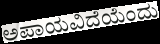
ಅಪಾಯವಿದೆಯೆಂದು